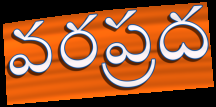
వరప్రద